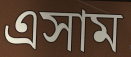
এসাম